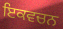
ਇਕਵਚਨ